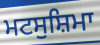
ਮਟਸੁਸ਼ਿਮਾ